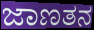
ಜಾಣತನ